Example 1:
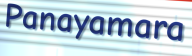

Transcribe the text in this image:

Panayamara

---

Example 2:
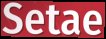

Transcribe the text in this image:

Setae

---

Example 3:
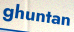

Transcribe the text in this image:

ghuntan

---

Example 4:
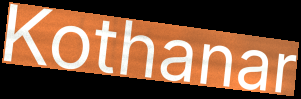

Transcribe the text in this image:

Kothanar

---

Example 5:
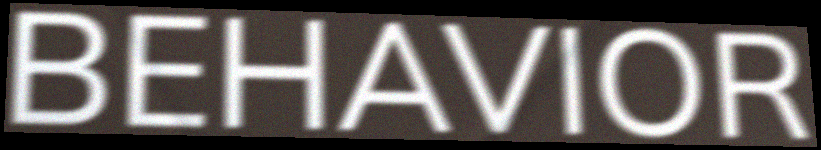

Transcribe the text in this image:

BEHAVIOR